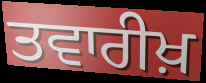
ਤਵਾਰੀਖ਼